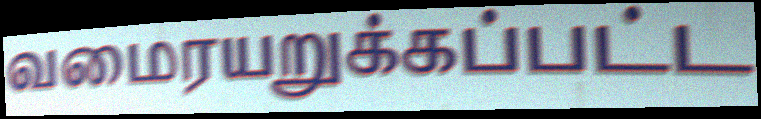
வமைரயறுக்கப்பட்ட